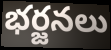
భర్జనలు